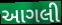
આગલી